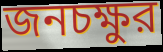
জনচক্ষুর